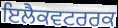
ਇਲੈਕਵਟਰਰਕ